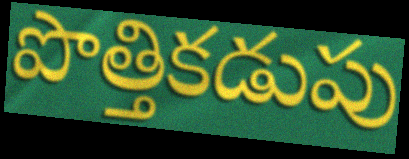
పొత్తికడుపు